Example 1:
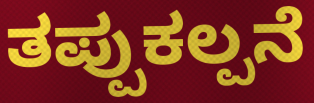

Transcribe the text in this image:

ತಪ್ಪುಕಲ್ಪನೆ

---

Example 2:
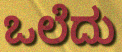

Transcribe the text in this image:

ಒಲೆದು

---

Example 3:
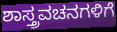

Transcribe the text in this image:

ಶಾಸ್ತ್ರವಚನಗಳಿಗೆ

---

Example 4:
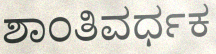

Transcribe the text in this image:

ಶಾಂತಿವರ್ಧಕ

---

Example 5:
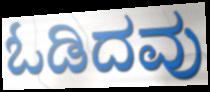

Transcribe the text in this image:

ಓಡಿದವು